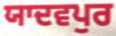
ਯਾਦਵਪੁਰ